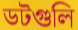
ডটগুলি